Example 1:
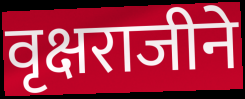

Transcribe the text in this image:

वृक्षराजीने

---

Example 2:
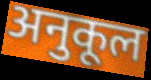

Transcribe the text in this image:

अनुकूल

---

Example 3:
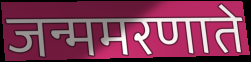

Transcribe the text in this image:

जन्ममरणाते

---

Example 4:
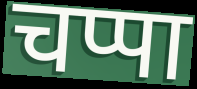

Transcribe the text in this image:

चप्पा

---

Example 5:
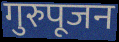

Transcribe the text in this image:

गुरुपूजन